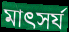
মাৎসর্য